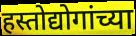
हस्तोद्योगांच्या